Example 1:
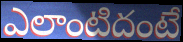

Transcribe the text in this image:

ఎలాంటిదంటే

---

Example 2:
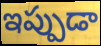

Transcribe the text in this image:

ఇప్పుడా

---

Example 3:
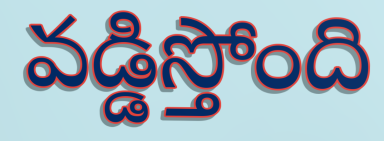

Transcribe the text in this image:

వడ్డిస్తోంది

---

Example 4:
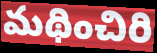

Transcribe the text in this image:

మథించిరి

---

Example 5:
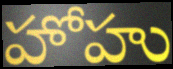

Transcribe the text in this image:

హోహు